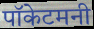
पॉकेटमनी